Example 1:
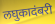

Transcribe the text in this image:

लघुकादंबरी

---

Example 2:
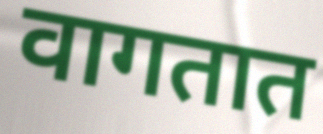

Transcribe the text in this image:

वागतात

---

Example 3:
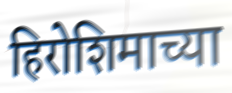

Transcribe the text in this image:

हिरोशिमाच्या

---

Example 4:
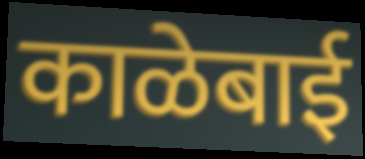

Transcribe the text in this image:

काळेबाई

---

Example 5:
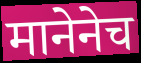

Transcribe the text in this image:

मानेनेच